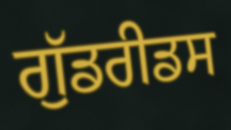
ਗੁੱਡਰੀਡਸ